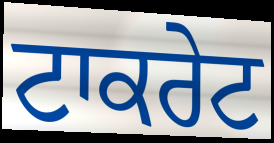
ਟਾਕਰੇਟ